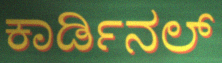
ಕಾರ್ಡಿನಲ್